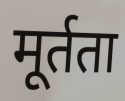
मूर्तता